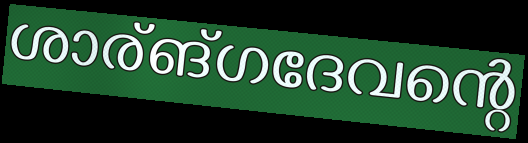
ശാര്ങ്ഗദേവന്റെ